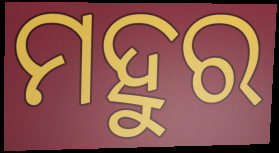
ମହୁର